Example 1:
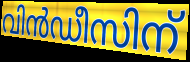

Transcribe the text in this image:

വിൻഡീസിന്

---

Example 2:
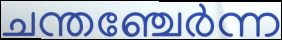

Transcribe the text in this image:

ചന്തഞ്ചേർന്ന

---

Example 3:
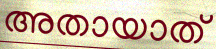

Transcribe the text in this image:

അതായാത്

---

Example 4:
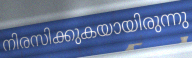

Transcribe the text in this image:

നിരസിക്കുകയായിരുന്നു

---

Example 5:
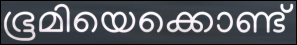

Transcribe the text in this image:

ഭൂമിയെക്കൊണ്ട്